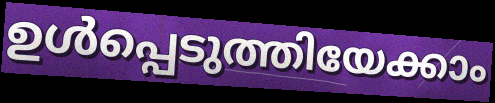
ഉൾപ്പെടുത്തിയേക്കാം